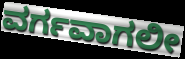
ವರ್ಗವಾಗಲೀ